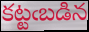
కట్టఁబడిన